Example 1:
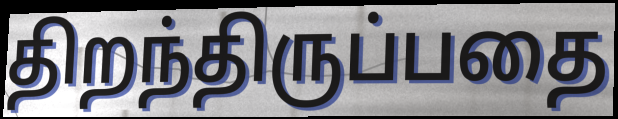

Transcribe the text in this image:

திறந்திருப்பதை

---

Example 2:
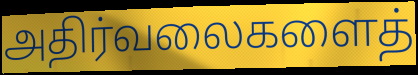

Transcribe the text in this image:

அதிர்வலைகளைத்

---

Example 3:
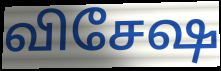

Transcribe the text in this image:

விசேஷ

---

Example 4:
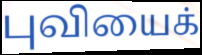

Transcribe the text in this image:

புவியைக்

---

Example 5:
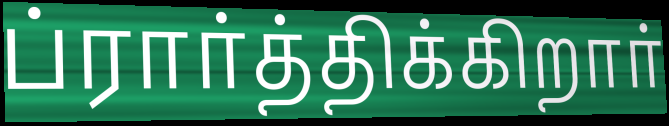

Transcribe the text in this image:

ப்ரார்த்திக்கிறார்